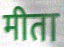
मीता